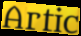
Artic